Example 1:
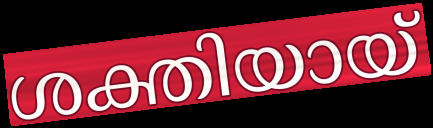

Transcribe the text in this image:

ശക്തിയായ്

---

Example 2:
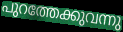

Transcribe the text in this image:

പുറത്തേക്കുവന്നു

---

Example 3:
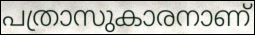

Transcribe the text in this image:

പത്രാസുകാരനാണ്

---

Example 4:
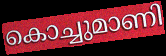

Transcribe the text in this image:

കൊച്ചുമാണി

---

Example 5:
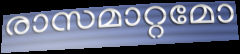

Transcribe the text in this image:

രാസമാറ്റമോ